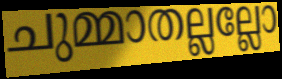
ചുമ്മാതല്ലല്ലോ